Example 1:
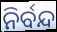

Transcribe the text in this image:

ନିର୍ବନ୍ଦ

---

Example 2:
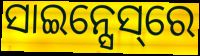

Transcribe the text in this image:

ସାଇନ୍ସେସ୍‌ରେ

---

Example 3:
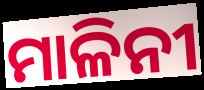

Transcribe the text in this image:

ମାଳିନୀ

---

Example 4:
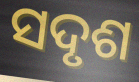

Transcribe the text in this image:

ସଦୃଶ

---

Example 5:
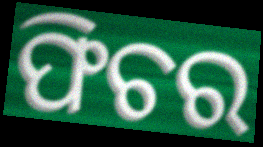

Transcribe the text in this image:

ଫିଚର